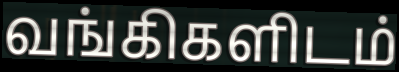
வங்கிகளிடம்